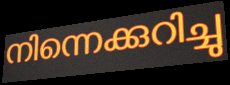
നിന്നെക്കുറിച്ചു